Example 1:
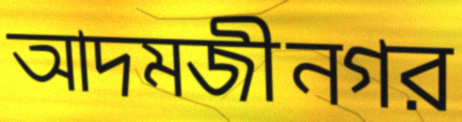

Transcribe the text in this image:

আদমজীনগর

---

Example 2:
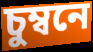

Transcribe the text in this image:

চুম্বনে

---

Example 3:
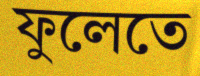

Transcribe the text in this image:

ফুলেতে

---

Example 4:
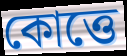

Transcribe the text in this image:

কোত্তে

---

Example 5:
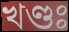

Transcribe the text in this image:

খণ্ডঃ